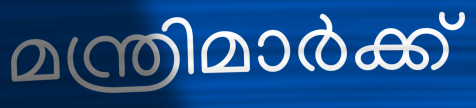
മന്ത്രിമാർക്ക്